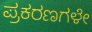
ಪ್ರಕರಣಗಳೇ